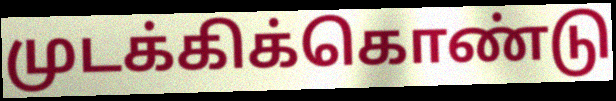
முடக்கிக்கொண்டு